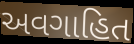
અવગાહિત